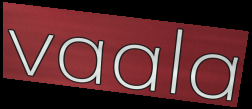
vaala